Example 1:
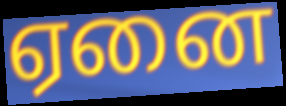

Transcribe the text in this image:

ஏனை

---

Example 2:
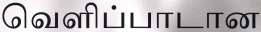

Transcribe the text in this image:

வெளிப்பாடான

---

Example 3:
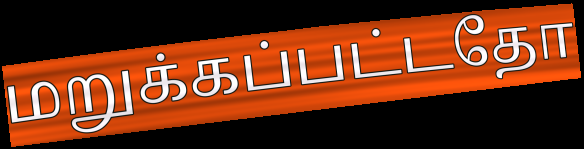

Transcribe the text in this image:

மறுக்கப்பட்டதோ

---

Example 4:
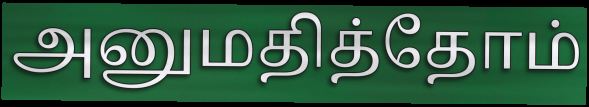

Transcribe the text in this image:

அனுமதித்தோம்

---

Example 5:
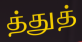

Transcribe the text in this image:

த்துத்